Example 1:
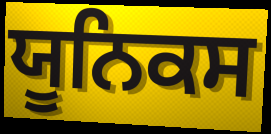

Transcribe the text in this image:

ਯੂਨਿਕਸ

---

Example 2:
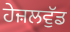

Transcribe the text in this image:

ਹੇਜ਼ਲਵੁੱਡ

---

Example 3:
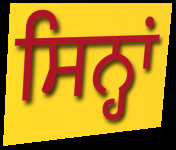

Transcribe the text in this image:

ਸਿਨ੍ਹਾਂ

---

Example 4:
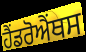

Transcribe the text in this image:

ਹੈਂਡਰੋਐਂਥਸ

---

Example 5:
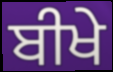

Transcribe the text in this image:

ਬੀਖੇ